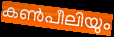
കൺപീലിയും